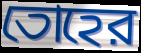
তোহের